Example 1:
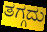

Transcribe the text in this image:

ತಗ್ಗದು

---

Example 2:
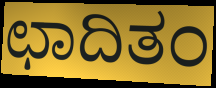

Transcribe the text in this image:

ಛಾದಿತಂ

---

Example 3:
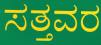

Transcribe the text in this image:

ಸತ್ತವರ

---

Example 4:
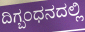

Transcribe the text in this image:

ದಿಗ್ಬಂಧನದಲ್ಲಿ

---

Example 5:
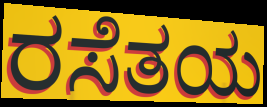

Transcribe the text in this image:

ರಸೆತಯ